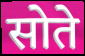
सोते